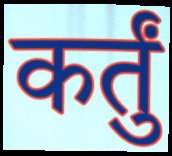
कर्तुं